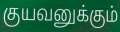
குயவனுக்கும்